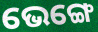
ଭେଙ୍ଗେ